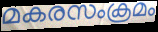
മകരസംക്രമം